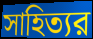
সাহিত্যর